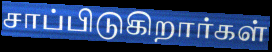
சாப்பிடுகிறார்கள்